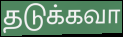
தடுக்கவா